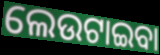
ଲେଉଟାଇବା